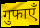
गुफाएँ